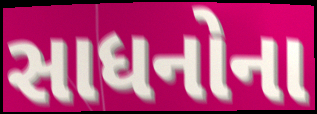
સાધનોના